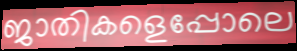
ജാതികളെപ്പോലെ